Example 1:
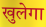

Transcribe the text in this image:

खुलेगा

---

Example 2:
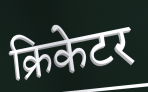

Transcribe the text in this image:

क्रिकेटर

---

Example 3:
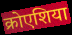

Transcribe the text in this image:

क्रोएशिया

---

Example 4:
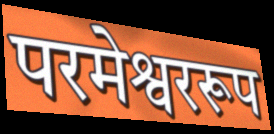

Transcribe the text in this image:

परमेश्वररूप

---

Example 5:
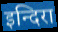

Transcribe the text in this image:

इन्दिरा